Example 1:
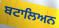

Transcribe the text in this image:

ਬਟਾਲਿਅਨ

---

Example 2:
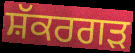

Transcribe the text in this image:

ਸ਼ੱਕਰਗੜ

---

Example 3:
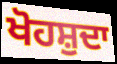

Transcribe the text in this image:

ਖੋਹਸ਼ੁਦਾ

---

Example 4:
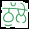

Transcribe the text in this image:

ਠੁੱਲੇ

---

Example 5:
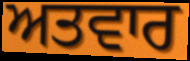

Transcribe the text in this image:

ਅਤਵਾਰ